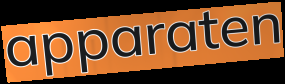
apparaten